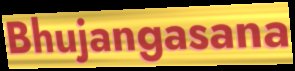
Bhujangasana